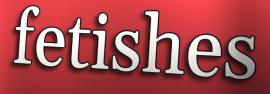
fetishes